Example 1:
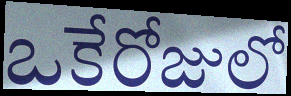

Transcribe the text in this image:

ఒకేరోజులో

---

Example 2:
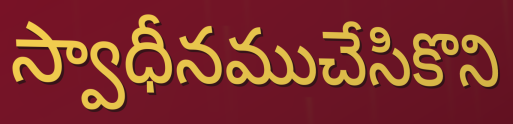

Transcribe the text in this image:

స్వాధీనముచేసికొని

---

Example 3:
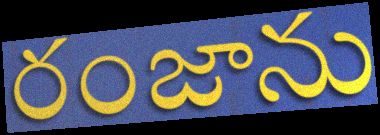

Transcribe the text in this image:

రంజాను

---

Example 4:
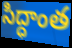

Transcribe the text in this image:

సిద్ధాంత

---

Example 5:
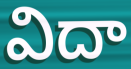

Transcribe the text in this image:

విదా